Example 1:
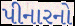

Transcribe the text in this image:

પીનારનો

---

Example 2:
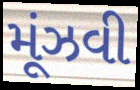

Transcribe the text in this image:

મૂંઝવી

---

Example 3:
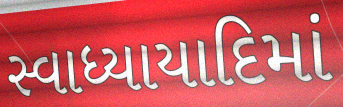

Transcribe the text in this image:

સ્વાધ્યાયાદિમાં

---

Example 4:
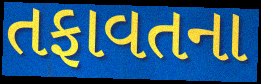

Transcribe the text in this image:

તફાવતના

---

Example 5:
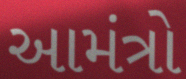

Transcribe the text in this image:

આમંત્રો